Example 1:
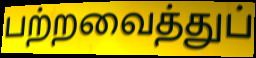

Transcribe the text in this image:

பற்றவைத்துப்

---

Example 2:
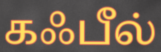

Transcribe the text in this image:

கஃபீல்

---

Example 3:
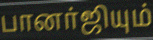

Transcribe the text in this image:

பானர்ஜியும்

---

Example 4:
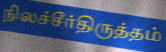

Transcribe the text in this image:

நிலச்சீர்திருத்தம்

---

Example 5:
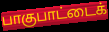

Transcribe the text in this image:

பாகுபாட்டைக்